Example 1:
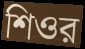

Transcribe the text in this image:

শিওর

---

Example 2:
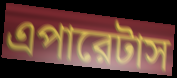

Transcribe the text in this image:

এপারেটাস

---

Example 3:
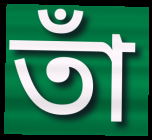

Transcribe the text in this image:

তাঁ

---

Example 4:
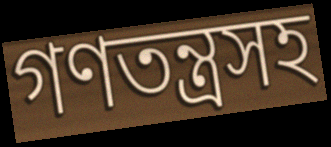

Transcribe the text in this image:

গণতন্ত্রসহ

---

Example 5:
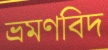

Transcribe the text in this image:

ভ্রমণবিদ